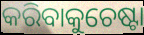
କରିବାକୁଚେଷ୍ଟା